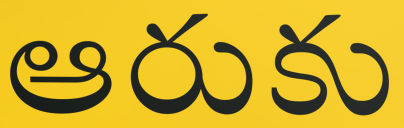
ఆరుకు